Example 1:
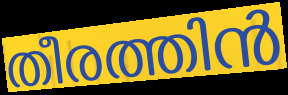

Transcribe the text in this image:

തീരത്തിൻ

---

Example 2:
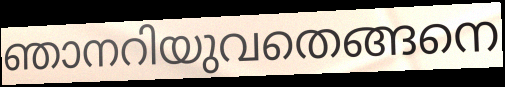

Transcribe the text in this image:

ഞാനറിയുവതെങ്ങനെ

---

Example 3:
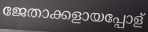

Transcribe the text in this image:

ജേതാക്കളായപ്പോള്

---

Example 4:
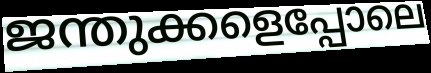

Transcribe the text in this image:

ജന്തുക്കളെപ്പോലെ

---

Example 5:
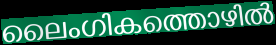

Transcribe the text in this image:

ലൈംഗികത്തൊഴിൽ